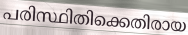
പരിസ്ഥിതിക്കെതിരായ